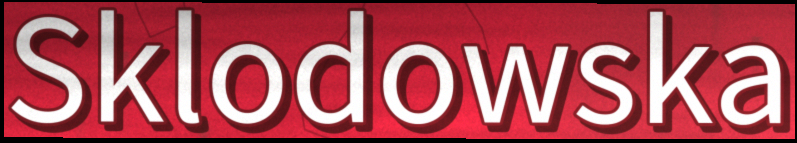
Sklodowska